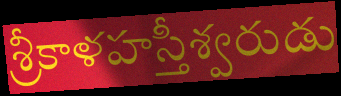
శ్రీకాళహస్తీశ్వరుడు